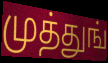
முத்துங்